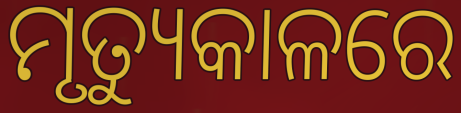
ମୃତ୍ୟୁକାଳରେ